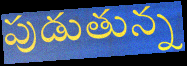
పుడుతున్న